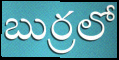
బుర్రలో